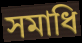
সমাধি